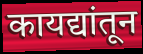
कायद्यांतून